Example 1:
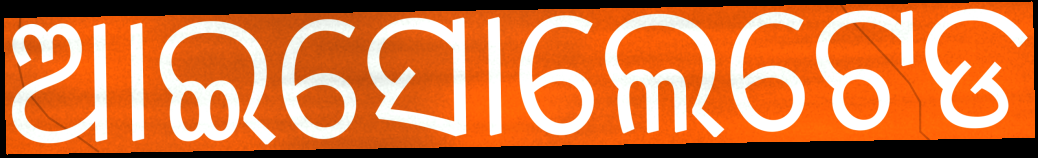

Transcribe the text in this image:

ଆଇସୋଲେଟେଡ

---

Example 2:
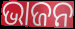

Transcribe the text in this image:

ଭାଜନ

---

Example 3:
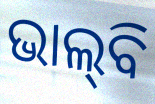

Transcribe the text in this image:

ଭାଲ୍‌ବି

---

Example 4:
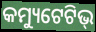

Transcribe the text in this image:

କମ୍ୟୁଟେଟିଭ୍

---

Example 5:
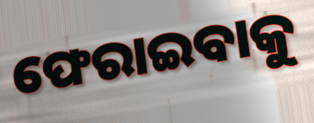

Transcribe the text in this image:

ଫେରାଇବାକୁ